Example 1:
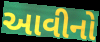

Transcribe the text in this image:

આવીનો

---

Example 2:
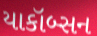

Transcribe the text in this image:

યાકૉબ્સન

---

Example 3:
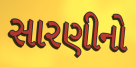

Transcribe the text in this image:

સારણીનો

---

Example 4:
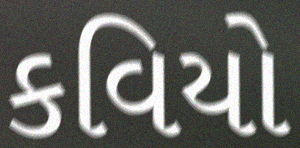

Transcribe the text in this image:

કવિયો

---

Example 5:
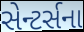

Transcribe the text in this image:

સેન્ટર્સના